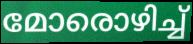
മോരൊഴിച്ച്